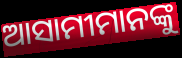
ଆସାମୀମାନଙ୍କୁ